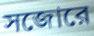
সজোরে